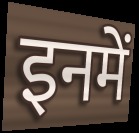
इनमें